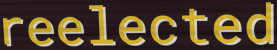
reelected